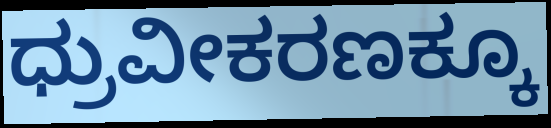
ಧ್ರುವೀಕರಣಕ್ಕೂ